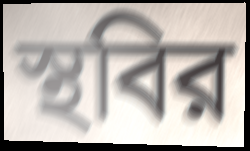
স্থবির